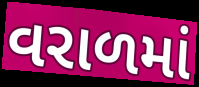
વરાળમાં